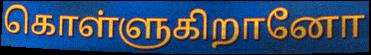
கொள்ளுகிறானோ